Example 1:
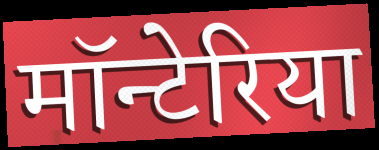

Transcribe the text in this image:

मॉन्टेरिया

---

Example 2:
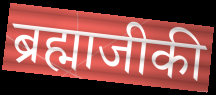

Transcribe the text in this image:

ब्रह्माजीकी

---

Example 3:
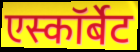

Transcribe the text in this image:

एस्कॉर्बेट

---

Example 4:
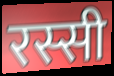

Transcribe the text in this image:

रस्‍सी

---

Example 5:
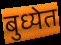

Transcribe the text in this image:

बुध्येत